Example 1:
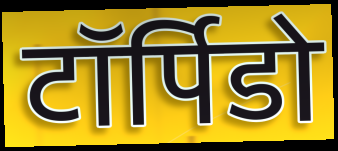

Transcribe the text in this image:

टॉर्पिडो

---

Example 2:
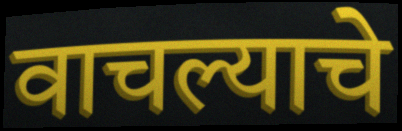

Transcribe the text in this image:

वाचल्याचे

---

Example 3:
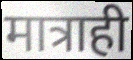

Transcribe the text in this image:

मात्राही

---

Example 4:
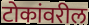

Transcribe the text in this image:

टोकांवरील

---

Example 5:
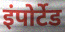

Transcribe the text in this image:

इंपोर्टेड